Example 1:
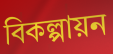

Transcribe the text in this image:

বিকল্পায়ন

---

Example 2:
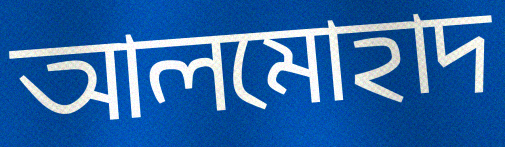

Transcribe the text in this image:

আলমোহাদ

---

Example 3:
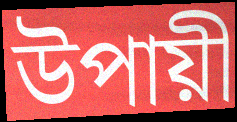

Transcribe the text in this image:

উপায়ী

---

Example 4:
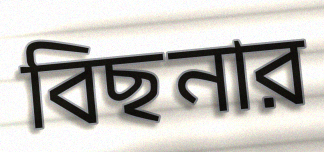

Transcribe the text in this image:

বিছনার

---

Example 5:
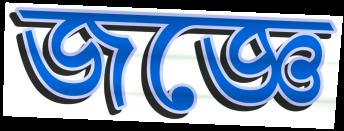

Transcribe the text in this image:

জজ্ঞে